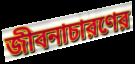
জীবনাচারণের